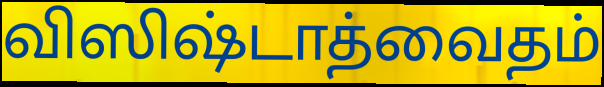
விஸிஷ்டாத்வைதம்